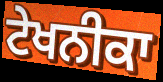
ਟੇਖਨੀਕਾ